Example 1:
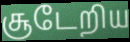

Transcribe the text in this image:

சூடேறிய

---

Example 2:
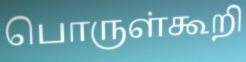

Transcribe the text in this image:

பொருள்கூறி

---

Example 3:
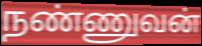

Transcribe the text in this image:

நண்ணுவன்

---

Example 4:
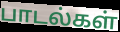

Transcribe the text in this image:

பாடல்கள்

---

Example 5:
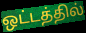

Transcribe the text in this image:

ஒட்டத்தில்